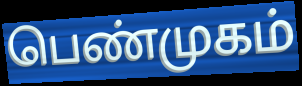
பெண்முகம்